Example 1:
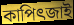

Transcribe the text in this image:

কাপিৎজাই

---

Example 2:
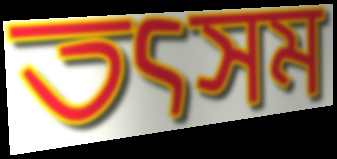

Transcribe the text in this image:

তৎসম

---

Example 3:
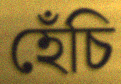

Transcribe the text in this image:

হেঁচি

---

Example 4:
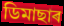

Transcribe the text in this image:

ডিমাছাৰ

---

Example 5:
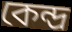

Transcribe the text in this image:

কেন্দ্ৰ